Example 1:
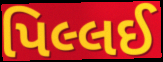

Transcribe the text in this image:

પિલ્લઈ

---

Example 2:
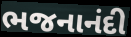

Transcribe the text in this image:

ભજનાનંદી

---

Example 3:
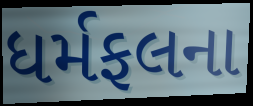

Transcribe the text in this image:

ધર્મફલના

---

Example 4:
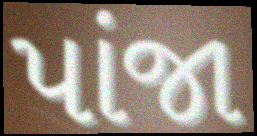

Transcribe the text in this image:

પાંજા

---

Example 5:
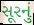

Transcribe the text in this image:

સૂરનું